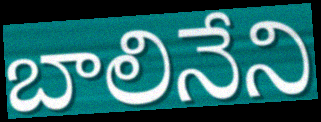
బాలినేని